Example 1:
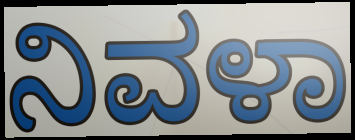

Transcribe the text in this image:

ನಿವಳಾ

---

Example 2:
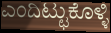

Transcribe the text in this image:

ಎಂದಿಟ್ಟುಕೊಳ್ಳಿ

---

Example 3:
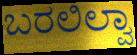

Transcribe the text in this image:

ಬರಲಿಲ್ವಾ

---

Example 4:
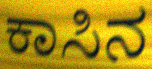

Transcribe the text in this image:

ಕಾಸಿನ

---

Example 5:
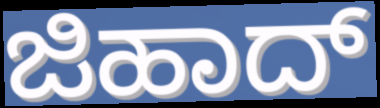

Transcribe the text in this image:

ಜಿಹಾದ್